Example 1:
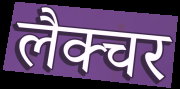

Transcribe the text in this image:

लैक्चर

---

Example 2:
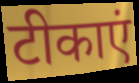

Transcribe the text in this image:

टीकाएं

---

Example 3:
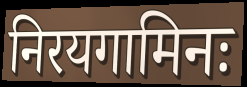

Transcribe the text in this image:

निरयगामिनः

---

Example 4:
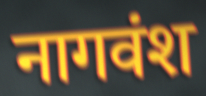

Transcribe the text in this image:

नागवंश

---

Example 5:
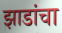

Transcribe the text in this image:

झाडांचा